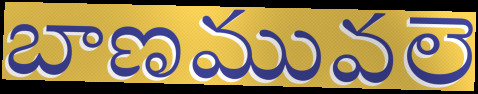
బాణమువలె